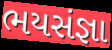
ભયસંજ્ઞા